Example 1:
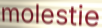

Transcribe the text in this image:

molestie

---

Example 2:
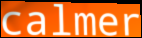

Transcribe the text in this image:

calmer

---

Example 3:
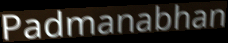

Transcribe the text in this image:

Padmanabhan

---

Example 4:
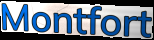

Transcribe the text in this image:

Montfort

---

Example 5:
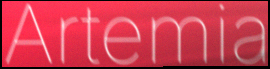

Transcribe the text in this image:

Artemia